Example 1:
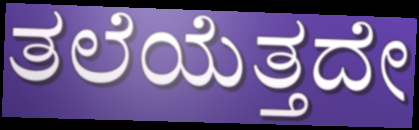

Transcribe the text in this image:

ತಲೆಯೆತ್ತದೇ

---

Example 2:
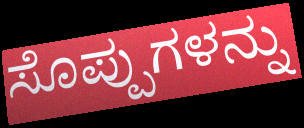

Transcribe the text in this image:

ಸೊಪ್ಪುಗಳನ್ನು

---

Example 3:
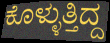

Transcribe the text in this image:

ಕೊಳ್ಳುತ್ತಿದ್ದ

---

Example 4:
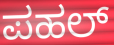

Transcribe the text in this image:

ಪಹಲ್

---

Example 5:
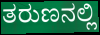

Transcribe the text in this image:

ತರುಣನಲ್ಲಿ